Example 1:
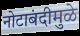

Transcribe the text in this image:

नोटाबंदीमुळे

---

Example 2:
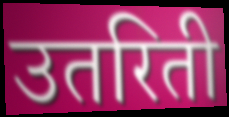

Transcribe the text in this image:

उतरिती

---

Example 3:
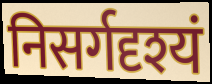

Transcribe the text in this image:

निसर्गदृश्यं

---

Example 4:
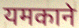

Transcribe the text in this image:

यमकाने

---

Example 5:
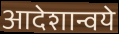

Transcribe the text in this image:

आदेशान्वये